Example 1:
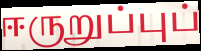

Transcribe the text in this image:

ஈருறுப்புப்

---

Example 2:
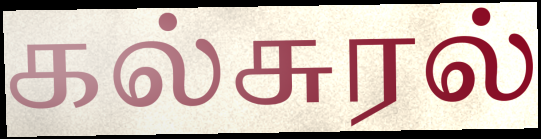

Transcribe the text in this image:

கல்சுரல்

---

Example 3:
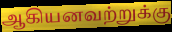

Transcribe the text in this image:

ஆகியனவற்றுக்கு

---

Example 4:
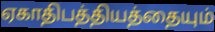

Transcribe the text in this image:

ஏகாதிபத்தியத்தையும்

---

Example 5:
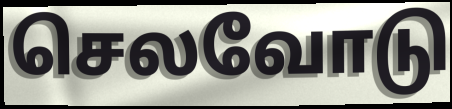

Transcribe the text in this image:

செலவோடு